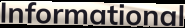
Informational